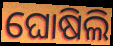
ଘୋଷିଲି